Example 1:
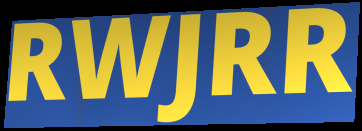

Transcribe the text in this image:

RWJRR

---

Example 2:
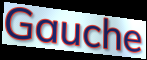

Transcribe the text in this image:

Gauche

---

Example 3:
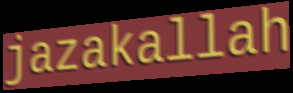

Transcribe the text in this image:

jazakallah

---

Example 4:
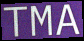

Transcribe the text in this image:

TMA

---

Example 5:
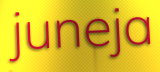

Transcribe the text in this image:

juneja